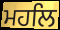
ਮਹਲਿ